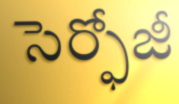
సెర్ఫోజీ